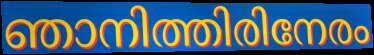
ഞാനിത്തിരിനേരം